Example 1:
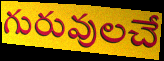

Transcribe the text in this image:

గురువులచే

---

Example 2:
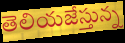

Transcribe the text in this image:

తెలియజేస్తున్న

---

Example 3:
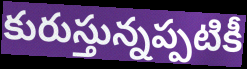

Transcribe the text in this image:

కురుస్తున్నప్పటికీ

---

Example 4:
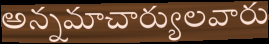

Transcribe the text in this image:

అన్నమాచార్యులవారు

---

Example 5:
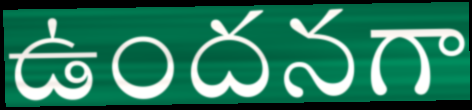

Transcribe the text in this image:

ఉందనగా